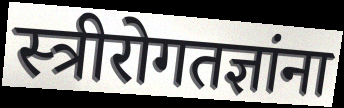
स्त्रीरोगतज्ञांना